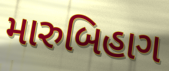
મારુબિહાગ